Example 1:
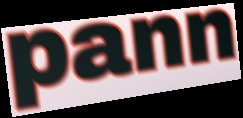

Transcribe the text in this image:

pann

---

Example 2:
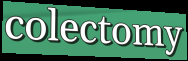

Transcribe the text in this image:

colectomy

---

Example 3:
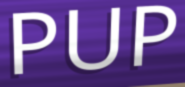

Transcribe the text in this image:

PUP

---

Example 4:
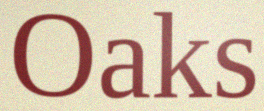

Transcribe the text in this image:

Oaks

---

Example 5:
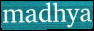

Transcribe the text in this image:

madhya